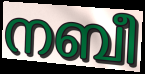
നബീ